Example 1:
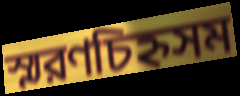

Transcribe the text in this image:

স্মরণচিহ্নসম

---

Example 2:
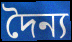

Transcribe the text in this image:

দৈন্য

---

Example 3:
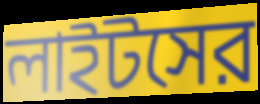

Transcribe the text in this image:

লাইটসের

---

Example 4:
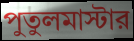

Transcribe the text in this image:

পুতুলমাস্টার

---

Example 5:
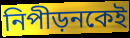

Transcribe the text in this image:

নিপীড়নকেই